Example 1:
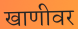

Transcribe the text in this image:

खाणीवर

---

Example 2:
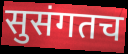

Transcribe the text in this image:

सुसंगतच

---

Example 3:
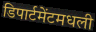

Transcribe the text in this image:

डिपार्टमेंटमधली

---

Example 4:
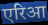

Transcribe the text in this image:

एरिआ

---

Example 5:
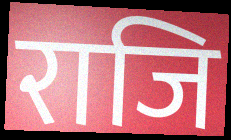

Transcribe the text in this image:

राजि